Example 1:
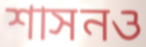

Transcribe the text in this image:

শাসনও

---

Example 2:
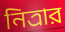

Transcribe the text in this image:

নিত্রার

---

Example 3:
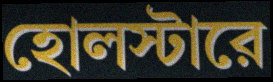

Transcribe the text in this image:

হোলস্টারে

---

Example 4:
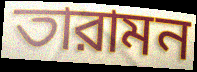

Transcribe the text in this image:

তারামন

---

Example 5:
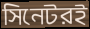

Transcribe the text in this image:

সিনেটরই